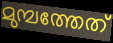
മുമ്പത്തേത്